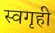
स्वगृही